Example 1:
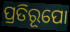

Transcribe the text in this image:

ପ୍ରତିରୂପୋ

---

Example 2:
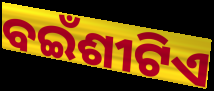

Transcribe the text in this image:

ବଇଁଶୀଟିଏ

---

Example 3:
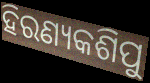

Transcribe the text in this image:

ହିରଣ୍ୟକଶିପୁ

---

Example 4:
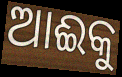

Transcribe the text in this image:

ଆଈକୁ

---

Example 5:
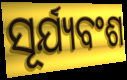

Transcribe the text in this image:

ସୂର୍ଯ୍ୟବଂଶ